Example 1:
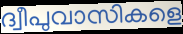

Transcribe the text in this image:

ദ്വീപുവാസികളെ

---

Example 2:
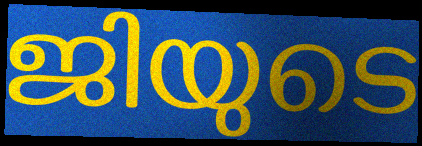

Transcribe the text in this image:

ജിയുടെ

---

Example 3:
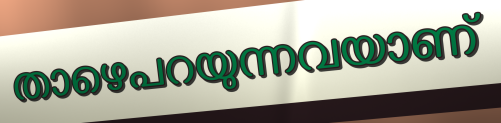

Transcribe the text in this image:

താഴെപറയുന്നവയാണ്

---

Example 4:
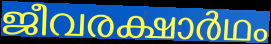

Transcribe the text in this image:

ജീവരക്ഷാർഥം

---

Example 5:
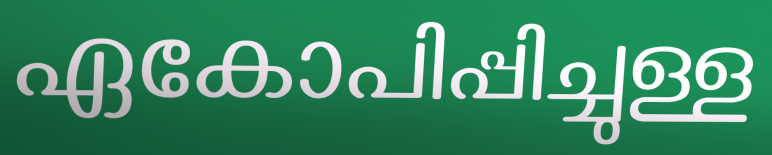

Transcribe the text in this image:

ഏകോപിപ്പിച്ചുള്ള